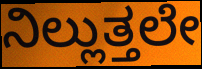
ನಿಲ್ಲುತ್ತಲೇ